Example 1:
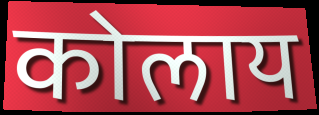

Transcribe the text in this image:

कोलाय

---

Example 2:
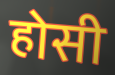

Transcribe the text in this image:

होसी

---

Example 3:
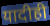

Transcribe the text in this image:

यादीही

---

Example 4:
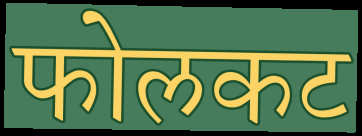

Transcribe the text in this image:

फोलकट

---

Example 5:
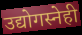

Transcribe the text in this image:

उद्योगस्नेही